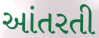
આંતરતી